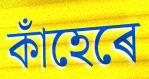
কাঁহেৰে